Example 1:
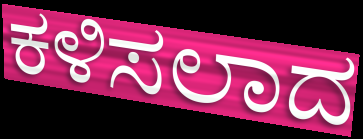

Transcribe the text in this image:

ಕಳಿಸಲಾದ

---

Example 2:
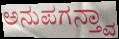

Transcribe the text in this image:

ಅನುಪಗನ್ತ್ವಾ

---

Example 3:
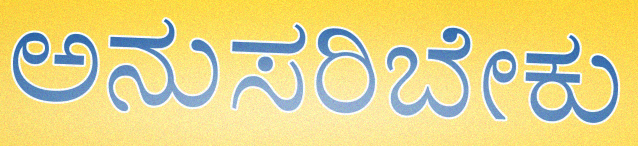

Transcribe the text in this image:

ಅನುಸರಿಬೇಕು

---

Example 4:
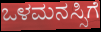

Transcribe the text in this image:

ಒಳಮನಸ್ಸಿಗೆ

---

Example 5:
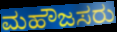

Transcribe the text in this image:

ಮಹೌಜಸರು